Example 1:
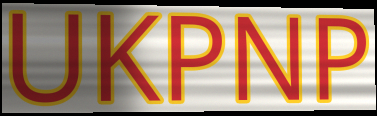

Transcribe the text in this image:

UKPNP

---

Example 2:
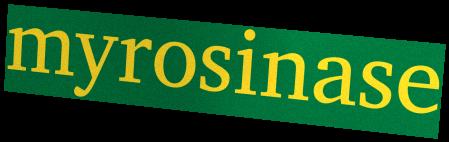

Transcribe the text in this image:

myrosinase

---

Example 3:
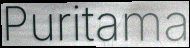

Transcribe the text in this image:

Puritama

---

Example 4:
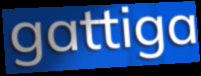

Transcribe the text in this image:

gattiga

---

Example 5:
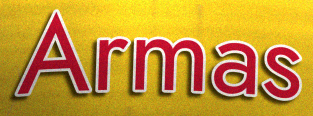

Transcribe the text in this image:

Armas